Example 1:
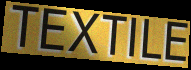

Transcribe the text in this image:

TEXTILE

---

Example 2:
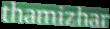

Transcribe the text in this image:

thamizhar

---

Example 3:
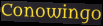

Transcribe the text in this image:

Conowingo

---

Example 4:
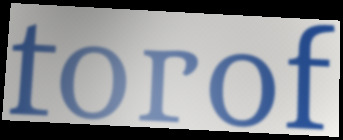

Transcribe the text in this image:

torof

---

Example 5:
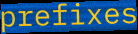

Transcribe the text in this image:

prefixes